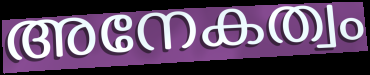
അനേകത്വം